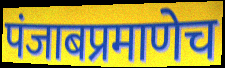
पंजाबप्रमाणेच